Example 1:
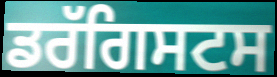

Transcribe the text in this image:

ਡਰੱਗਿਸਟਸ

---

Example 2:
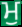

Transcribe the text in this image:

ਮੁ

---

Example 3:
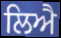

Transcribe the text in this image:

ਲਿਐ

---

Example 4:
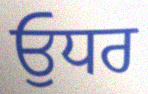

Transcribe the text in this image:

ਓੁਧਰ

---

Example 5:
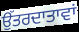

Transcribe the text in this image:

ਉੱਤਰਦਾਤਾਵਾਂ